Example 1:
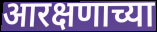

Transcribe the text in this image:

आरक्षणाच्या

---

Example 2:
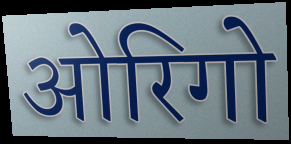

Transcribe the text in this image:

ओरिगो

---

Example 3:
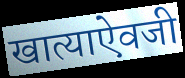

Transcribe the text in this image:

खात्याऐवजी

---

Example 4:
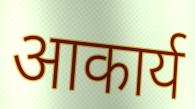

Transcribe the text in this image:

आकार्य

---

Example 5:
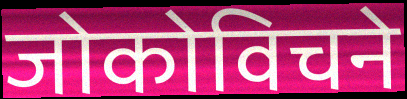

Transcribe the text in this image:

जोकोविचने